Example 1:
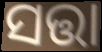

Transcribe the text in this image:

ସତ୍ତା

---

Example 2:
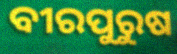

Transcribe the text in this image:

ବୀରପୁରୁଷ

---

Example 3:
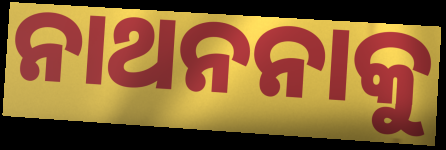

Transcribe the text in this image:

ନାଥନନାକୁ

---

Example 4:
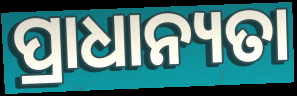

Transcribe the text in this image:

ପ୍ରାଧାନ୍ୟତା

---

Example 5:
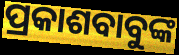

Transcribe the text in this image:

ପ୍ରକାଶବାବୁଙ୍କ